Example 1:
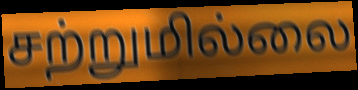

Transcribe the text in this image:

சற்றுமில்லை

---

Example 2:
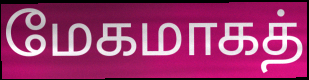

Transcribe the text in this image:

மேகமாகத்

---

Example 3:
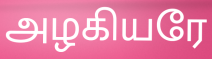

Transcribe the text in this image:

அழகியரே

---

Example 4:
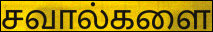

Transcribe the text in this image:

சவால்களை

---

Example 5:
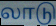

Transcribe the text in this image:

லாடு